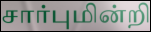
சார்புமின்றி